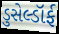
ડુસેલ્ડૉર્ફ